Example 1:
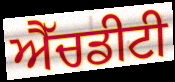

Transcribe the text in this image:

ਐੱਚਡੀਟੀ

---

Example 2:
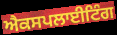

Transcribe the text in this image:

ਐਕਸਪਲਾਈਟਿੰਗ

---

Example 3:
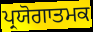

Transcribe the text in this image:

ਪ੍ਰਯੋਗਾਤਮਕ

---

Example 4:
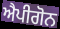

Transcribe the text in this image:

ਐਪੀਗੋਨ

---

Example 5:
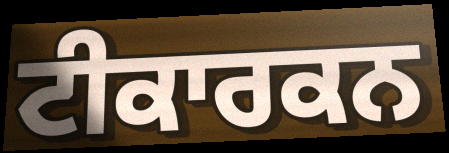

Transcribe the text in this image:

ਟੀਕਾਰਕਨ